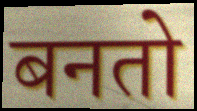
बनतो